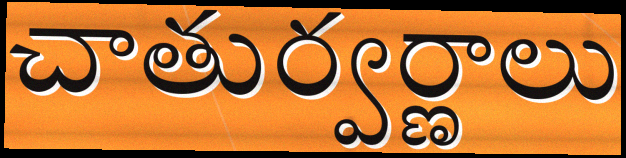
చాతుర్వర్ణాలు